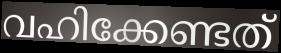
വഹിക്കേണ്ടത്